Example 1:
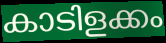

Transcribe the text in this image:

കാടിളക്കം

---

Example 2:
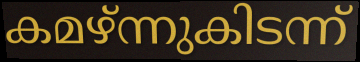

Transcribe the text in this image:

കമഴ്ന്നുകിടന്ന്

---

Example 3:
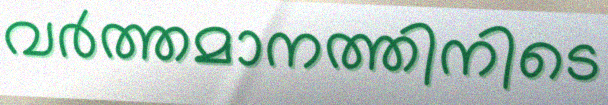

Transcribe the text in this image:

വർത്തമാനത്തിനിടെ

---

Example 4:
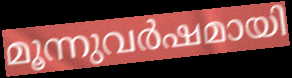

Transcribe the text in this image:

മൂന്നുവർഷമായി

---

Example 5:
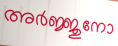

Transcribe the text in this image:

അർജ്ജുനോ